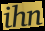
ihn